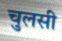
चुलसी